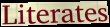
Literates